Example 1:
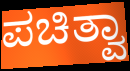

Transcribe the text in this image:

ಪಚಿತ್ವಾ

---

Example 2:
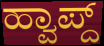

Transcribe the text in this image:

ಹ್ವಾಪ್ದ್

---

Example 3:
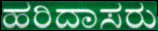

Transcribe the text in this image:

ಹರಿದಾಸರು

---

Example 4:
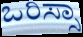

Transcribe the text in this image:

ಒರಿಸ್ಸಾ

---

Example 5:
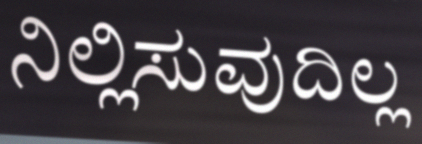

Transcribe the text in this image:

ನಿಲ್ಲಿಸುವುದಿಲ್ಲ